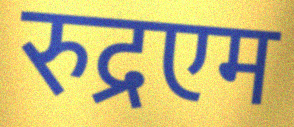
रुद्रएम